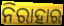
ନିରାହାର